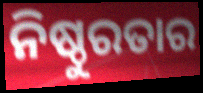
ନିଷ୍ଠୁରତାର